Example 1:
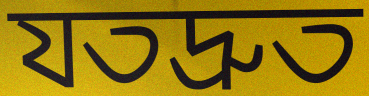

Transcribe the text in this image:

যতদ্রুত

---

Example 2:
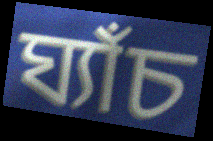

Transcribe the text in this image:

ঘ্যাঁচ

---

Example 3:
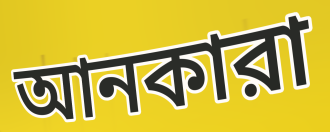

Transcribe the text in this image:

আনকারা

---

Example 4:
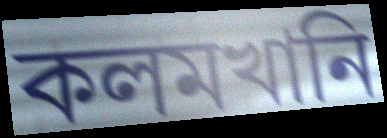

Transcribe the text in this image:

কলমখানি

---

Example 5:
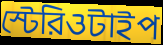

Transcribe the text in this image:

স্টেরিওটাইপ